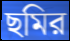
ছমির